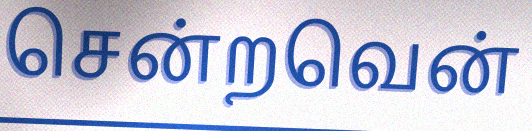
சென்றவென்